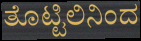
ತೊಟ್ಟಿಲಿನಿಂದ